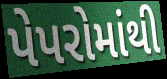
પેપરોમાંથી